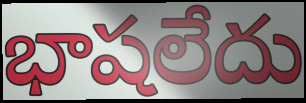
భాషలేదు